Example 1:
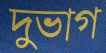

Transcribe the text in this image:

দুভাগ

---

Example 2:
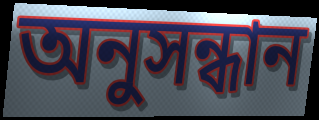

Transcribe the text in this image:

অনুসন্ধান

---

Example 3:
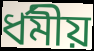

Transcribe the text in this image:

ৰ্ধমীয়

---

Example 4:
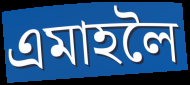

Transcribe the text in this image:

এমাহলৈ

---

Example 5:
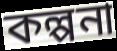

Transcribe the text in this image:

কল্পনা